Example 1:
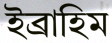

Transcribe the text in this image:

ইব্রাহিম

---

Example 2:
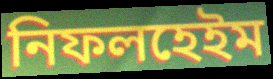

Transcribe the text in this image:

নিফলহেইম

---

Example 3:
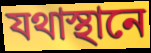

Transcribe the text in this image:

যথাস্থানে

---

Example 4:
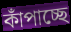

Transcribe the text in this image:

কাঁপাচ্ছে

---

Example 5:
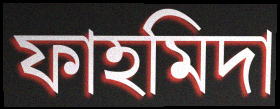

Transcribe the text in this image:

ফাহমিদা